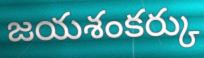
జయశంకర్కు